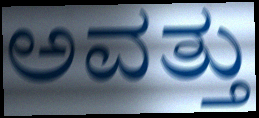
ಅವತ್ತು